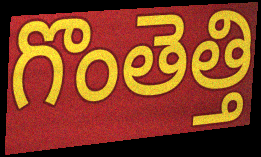
గొంతెత్తి